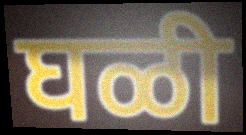
घळी